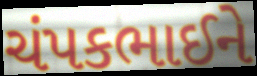
ચંપકભાઈને